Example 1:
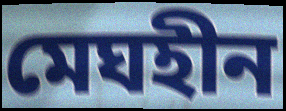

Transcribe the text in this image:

মেঘহীন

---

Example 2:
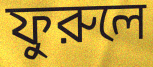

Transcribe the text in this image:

ফুরুলে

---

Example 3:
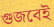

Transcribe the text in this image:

গুজবেই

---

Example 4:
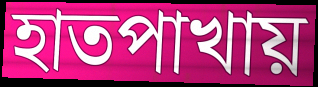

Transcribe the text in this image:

হাতপাখায়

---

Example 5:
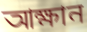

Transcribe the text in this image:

আক্ষান